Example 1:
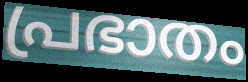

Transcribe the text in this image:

പ്രഭാതം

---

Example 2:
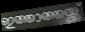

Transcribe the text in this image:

ഇത്താത്തയ്ക്ക്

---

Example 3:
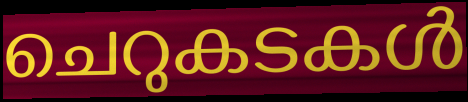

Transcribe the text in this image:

ചെറുകടകൾ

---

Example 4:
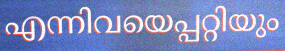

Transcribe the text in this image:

എന്നിവയെപ്പറ്റിയും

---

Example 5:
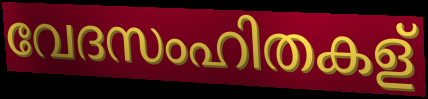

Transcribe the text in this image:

വേദസംഹിതകള്